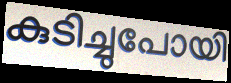
കുടിച്ചുപോയി